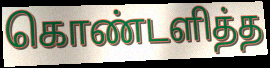
கொண்டளித்த